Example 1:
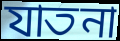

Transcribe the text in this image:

যাতনা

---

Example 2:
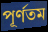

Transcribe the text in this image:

পূর্ণতম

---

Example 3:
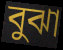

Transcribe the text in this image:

বুঝা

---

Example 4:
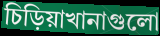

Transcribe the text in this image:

চিড়িয়াখানাগুলো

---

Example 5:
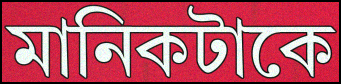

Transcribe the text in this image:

মানিকটাকে